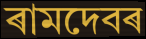
ৰামদেবৰ